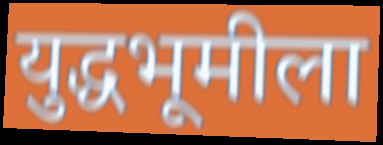
युद्धभूमीला